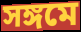
সঙ্গমে